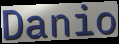
Danio